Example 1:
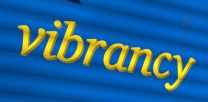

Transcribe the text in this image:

vibrancy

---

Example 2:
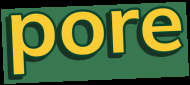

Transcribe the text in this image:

pore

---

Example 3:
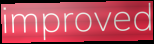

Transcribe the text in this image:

improved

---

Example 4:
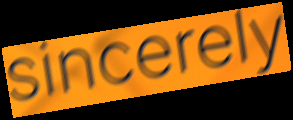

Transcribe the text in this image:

sincerely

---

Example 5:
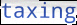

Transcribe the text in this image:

taxing